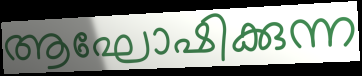
ആഘോഷിക്കുന്ന